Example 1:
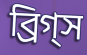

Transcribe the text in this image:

ব্রিগ্‌স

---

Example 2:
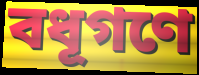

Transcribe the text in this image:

বধূগণে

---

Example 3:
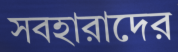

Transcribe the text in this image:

সবহারাদের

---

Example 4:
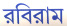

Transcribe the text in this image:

রবিরাম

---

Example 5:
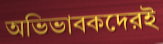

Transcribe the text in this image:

অভিভাবকদেরই